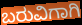
ಬರುವಿಗಾಗಿ